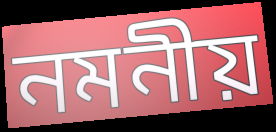
নমনীয়